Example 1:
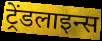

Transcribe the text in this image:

ट्रेंडलाइन्स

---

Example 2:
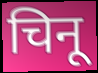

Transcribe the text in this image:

चिनू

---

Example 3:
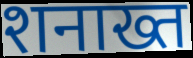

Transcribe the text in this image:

शनाख्त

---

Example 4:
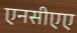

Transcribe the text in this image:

एनसीएए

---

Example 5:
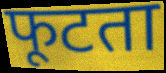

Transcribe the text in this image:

फूटता